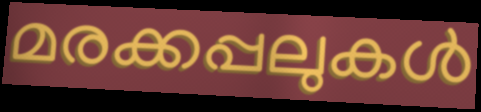
മരക്കപ്പലുകൾ